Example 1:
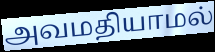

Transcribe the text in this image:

அவமதியாமல்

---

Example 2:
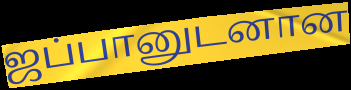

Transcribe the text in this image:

ஜப்பானுடனான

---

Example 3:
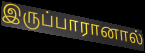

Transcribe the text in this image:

இருப்பாரானால்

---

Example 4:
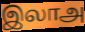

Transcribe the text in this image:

இலாஅ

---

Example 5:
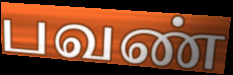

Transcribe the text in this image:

பவண்